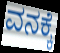
ವನಕ್ಕೆ